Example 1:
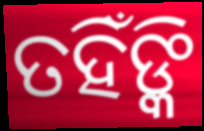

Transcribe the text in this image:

ତହିଁଙ୍କି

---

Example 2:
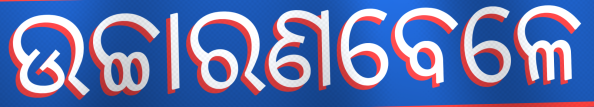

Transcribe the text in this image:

ଉଚ୍ଚାରଣବେଳେ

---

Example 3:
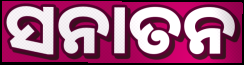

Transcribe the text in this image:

ସନାତନ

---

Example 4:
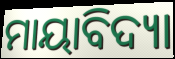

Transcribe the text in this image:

ମାୟାବିଦ୍ୟା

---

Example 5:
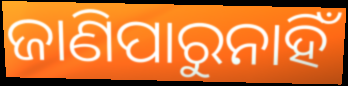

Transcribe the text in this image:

ଜାଣିପାରୁନାହିଁ